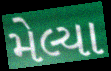
મેલ્યા